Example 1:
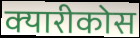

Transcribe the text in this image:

क्यारीकोस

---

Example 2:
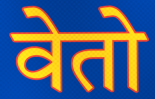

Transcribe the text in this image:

वेतो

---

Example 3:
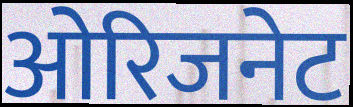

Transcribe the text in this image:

ओरिजनेट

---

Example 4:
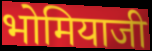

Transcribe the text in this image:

भोमियाजी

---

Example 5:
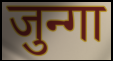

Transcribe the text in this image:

जुन्गा